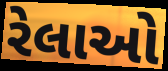
રેલાઓ